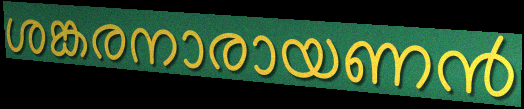
ശങ്കരനാരായണൻ